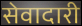
सेवादारी